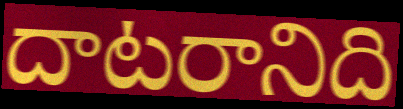
దాటరానిది